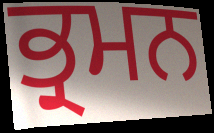
ਭ੍ਰਮਨ